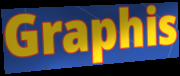
Graphis